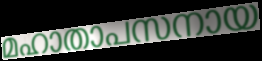
മഹാതാപസനായ